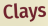
Clays